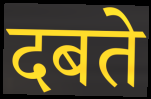
दबते